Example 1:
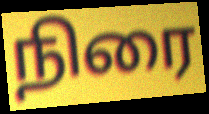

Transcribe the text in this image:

நிரை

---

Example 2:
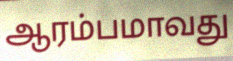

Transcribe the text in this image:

ஆரம்பமாவது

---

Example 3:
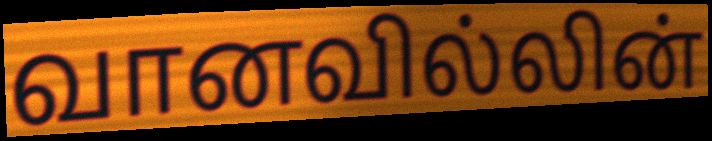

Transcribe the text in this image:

வானவில்லின்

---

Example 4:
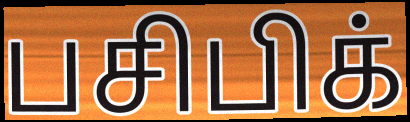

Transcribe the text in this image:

பசிபிக்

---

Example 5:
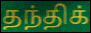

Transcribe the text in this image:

தந்திக்